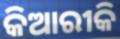
କିଆରୀକି